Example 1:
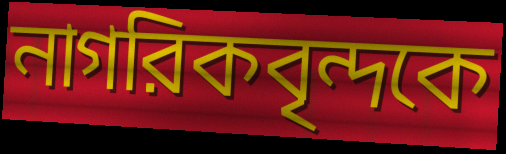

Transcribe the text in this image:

নাগরিকবৃন্দকে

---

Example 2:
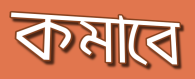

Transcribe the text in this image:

কমাবে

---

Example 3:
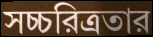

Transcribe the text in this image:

সচ্চরিত্রতার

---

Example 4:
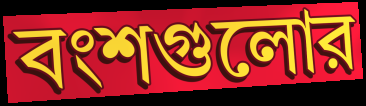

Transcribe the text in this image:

বংশগুলোর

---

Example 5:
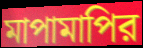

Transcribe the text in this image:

মাপামাপির